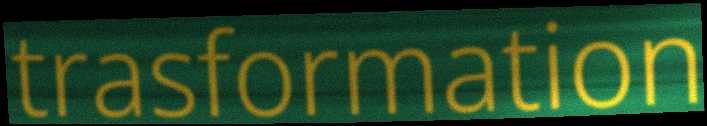
trasformation